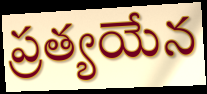
ప్రత్యయేన